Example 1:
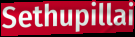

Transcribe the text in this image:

Sethupillai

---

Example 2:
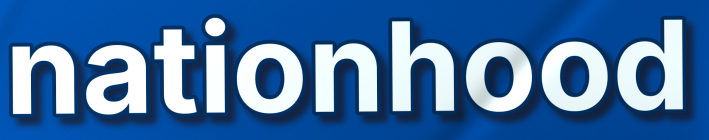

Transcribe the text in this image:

nationhood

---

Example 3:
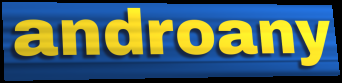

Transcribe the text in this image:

androany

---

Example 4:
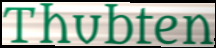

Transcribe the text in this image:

Thubten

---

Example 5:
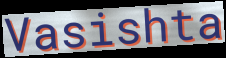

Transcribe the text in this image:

Vasishta